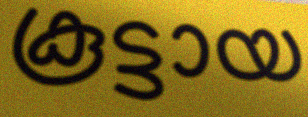
കൂട്ടായ